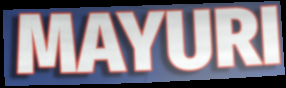
MAYURI